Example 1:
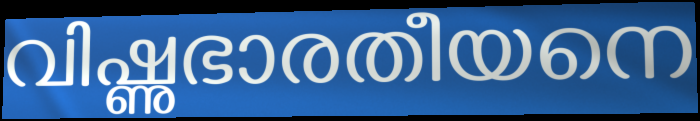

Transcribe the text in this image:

വിഷ്ണുഭാരതീയനെ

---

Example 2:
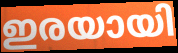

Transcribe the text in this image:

ഇരയായി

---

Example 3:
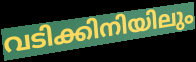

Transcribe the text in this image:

വടിക്കിനിയിലും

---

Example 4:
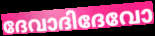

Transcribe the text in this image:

ദേവാദിദേവോ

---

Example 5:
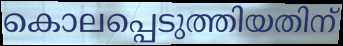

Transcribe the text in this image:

കൊലപ്പെടുത്തിയതിന്